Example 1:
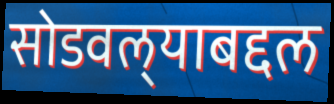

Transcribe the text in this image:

सोडवल्याबद्दल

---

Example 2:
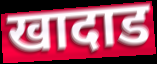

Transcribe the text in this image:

खादाड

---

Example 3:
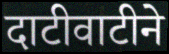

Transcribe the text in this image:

दाटीवाटीने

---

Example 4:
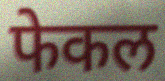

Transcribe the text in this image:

फेकल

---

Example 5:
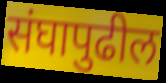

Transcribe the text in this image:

संघापुढील